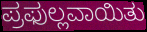
ಪ್ರಫುಲ್ಲವಾಯಿತು